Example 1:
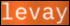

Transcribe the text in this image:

levay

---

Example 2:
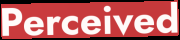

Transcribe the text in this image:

Perceived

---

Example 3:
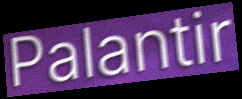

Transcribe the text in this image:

Palantir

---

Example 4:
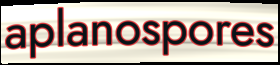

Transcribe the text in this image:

aplanospores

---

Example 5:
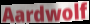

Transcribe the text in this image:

Aardwolf